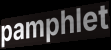
pamphlet